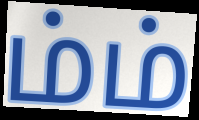
ம்ம்